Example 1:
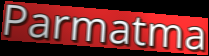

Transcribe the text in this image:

Parmatma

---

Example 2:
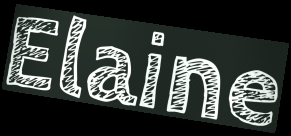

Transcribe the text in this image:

Elaine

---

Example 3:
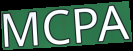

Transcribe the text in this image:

MCPA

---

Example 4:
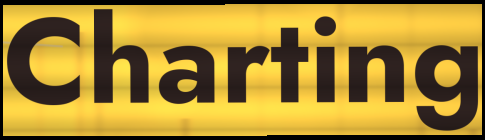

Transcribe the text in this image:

Charting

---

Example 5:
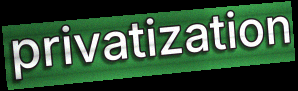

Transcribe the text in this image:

privatization